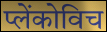
प्लेंकोविच